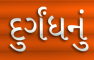
દુર્ગંધનું